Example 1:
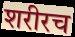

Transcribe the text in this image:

शरीरच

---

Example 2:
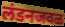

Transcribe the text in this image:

लंडनजवळ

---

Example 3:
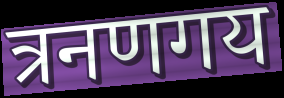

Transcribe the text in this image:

त्रनणगय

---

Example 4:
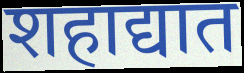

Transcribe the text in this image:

शहाद्यात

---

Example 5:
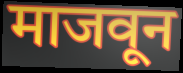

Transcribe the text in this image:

माजवून